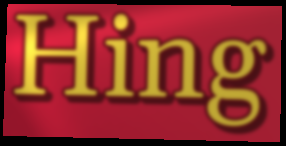
Hing